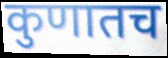
कुणातच